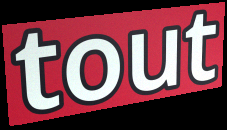
tout